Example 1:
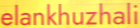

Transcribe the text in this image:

elankhuzhali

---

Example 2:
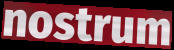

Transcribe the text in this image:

nostrum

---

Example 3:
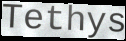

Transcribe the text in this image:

Tethys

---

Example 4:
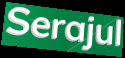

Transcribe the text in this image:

Serajul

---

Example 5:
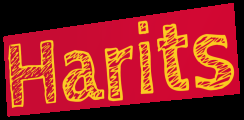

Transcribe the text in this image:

Harits